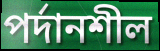
পর্দানশীল